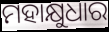
ମହାକ୍ଷୁଧାର